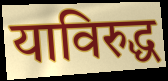
याविरुद्ध